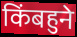
किंबहुने